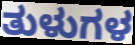
ತುಳುಗಳ